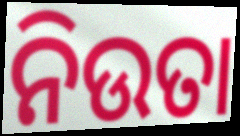
ନିଉତା